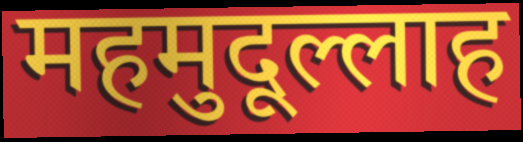
महमुदूल्लाह